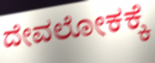
ದೇವಲೋಕಕ್ಕೆ